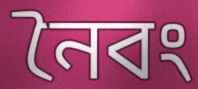
নৈবং